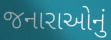
જનારાઓનું